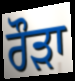
ਰੌੜਾ